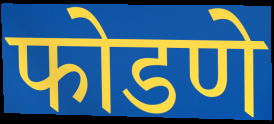
फोडणे